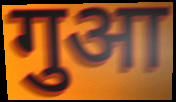
गुआ